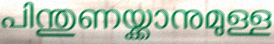
പിന്തുണയ്ക്കാനുമുള്ള